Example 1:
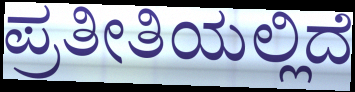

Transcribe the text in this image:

ಪ್ರತೀತಿಯಲ್ಲಿದೆ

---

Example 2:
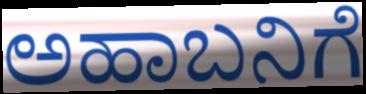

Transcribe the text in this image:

ಅಹಾಬನಿಗೆ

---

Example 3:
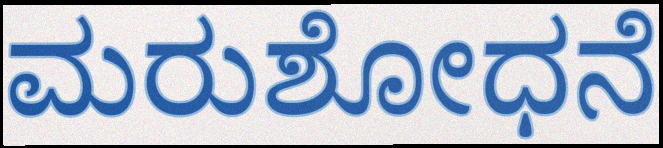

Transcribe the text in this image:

ಮರುಶೋಧನೆ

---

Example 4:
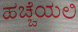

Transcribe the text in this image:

ಹಚ್ಚೆಯಲಿ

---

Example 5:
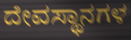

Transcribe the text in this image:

ದೇವಸ್ಥಾನಗಳ